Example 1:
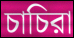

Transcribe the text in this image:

চাচিরা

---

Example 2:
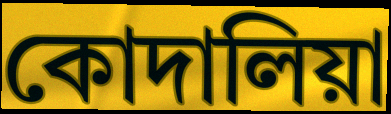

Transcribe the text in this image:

কোদালিয়া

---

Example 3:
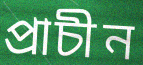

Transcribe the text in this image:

প্রাচীন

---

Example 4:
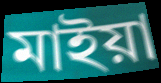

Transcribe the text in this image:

মাইয়া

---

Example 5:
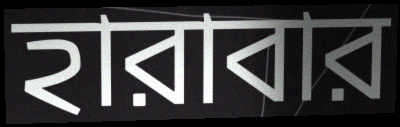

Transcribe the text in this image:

হারাবার